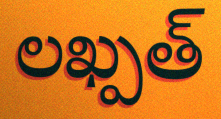
లఖ్పత్